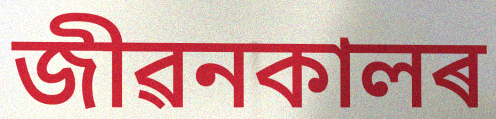
জীৱনকালৰ